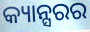
କ୍ୟାନ୍ସରର